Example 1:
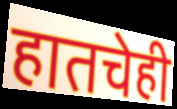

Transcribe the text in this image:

हातचेही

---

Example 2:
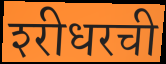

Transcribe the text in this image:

श्रीधरची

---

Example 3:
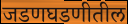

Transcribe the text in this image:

जडणघडणीतील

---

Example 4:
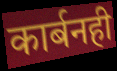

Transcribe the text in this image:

कार्बनही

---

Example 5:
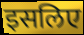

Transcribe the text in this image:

इसलिए